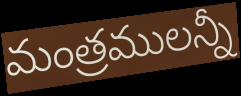
మంత్రములన్నీ